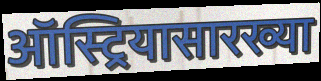
ऑस्ट्रियासारख्या